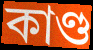
কাণ্ড